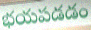
భయపడడం